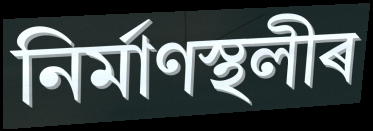
নিৰ্মাণস্থলীৰ